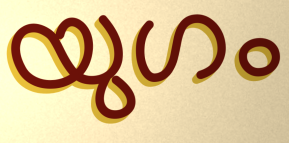
യുഗം